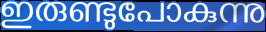
ഇരുണ്ടുപോകുന്നു